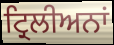
ਟ੍ਰਿਲੀਅਨਾਂ